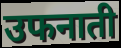
उफनाती